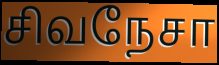
சிவநேசா